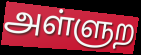
அள்ளுற